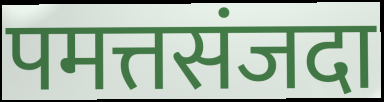
पमत्तसंजदा